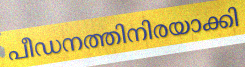
പീഡനത്തിനിരയാക്കി